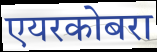
एयरकोबरा